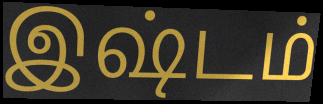
இஷ்டம்